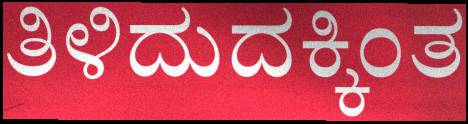
ತಿಳಿದುದಕ್ಕಿಂತ